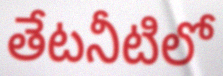
తేటనీటిలో